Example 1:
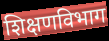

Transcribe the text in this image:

शिक्षणविभाग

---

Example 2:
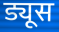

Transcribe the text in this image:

ड्यूस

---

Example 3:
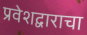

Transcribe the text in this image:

प्रवेशद्वाराचा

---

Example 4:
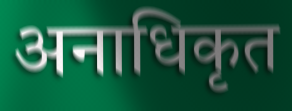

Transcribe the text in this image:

अनाधिकृत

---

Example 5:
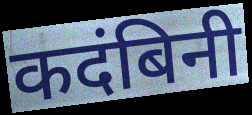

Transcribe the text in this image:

कदंबिनी